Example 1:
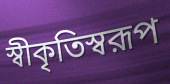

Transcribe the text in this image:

স্বীকৃতিস্বরূপ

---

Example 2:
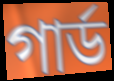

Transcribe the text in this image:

গার্ড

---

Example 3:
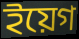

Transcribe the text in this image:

ইয়েগ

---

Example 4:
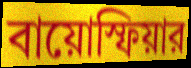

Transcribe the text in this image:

বায়োস্ফিয়ার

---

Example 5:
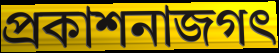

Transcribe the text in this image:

প্রকাশনাজগৎ